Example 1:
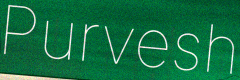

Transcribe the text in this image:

Purvesh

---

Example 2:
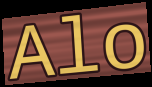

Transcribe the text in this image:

Alo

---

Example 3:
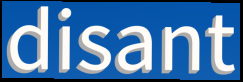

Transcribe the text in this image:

disant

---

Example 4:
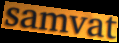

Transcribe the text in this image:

samvat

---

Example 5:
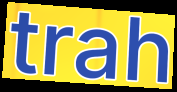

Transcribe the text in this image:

trah